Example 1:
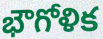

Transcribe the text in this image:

భౌగోళిక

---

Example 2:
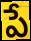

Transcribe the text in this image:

పే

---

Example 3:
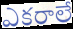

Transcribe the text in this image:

ఎకరాలే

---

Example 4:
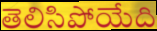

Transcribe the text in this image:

తెలిసిపోయేది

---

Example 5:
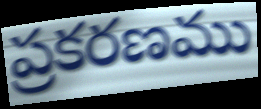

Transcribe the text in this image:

ప్రకరణము